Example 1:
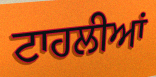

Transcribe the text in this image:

ਟਾਹਲੀਆਂ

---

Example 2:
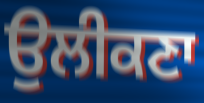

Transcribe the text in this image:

ਉਲੀਕਣਾ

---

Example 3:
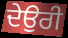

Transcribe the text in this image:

ਦੇਉਰੀ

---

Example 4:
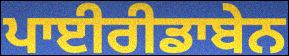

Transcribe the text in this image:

ਪਾਈਰੀਡਾਬੇਨ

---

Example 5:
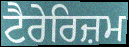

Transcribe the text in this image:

ਟੈਰੇਰਿਜ਼ਮ